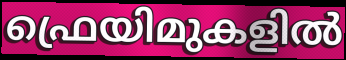
ഫ്രെയിമുകളിൽ